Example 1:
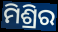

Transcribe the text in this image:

ମିଶ୍ରିର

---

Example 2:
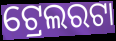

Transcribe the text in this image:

ଟ୍ରେଲରଟା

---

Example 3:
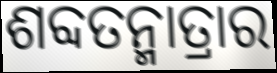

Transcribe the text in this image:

ଶବ୍ଦତନ୍ମାତ୍ରାର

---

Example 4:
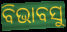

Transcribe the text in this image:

ବିଭାବସୁ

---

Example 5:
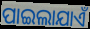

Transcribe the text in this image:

ପାଇଲାଯାଏଁ